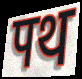
पथ